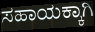
ಸಹಾಯಕ್ಕಾಗಿ